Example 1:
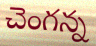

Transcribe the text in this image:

చెంగన్న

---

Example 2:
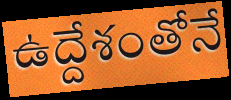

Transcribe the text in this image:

ఉద్దేశంతోనే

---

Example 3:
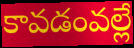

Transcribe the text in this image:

కావడంవల్లే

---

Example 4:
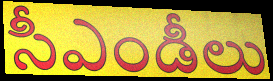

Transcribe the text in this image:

సీఎండీలు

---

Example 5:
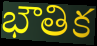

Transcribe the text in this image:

భౌతిక